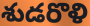
శుడరొళి